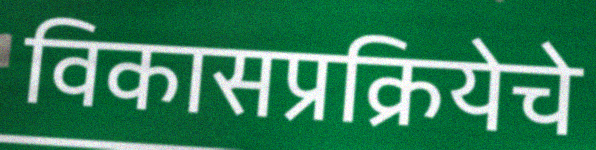
विकासप्रक्रियेचे